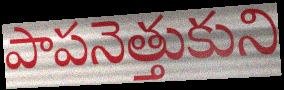
పాపనెత్తుకుని